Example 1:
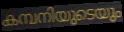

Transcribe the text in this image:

കമ്പനിയുടെയും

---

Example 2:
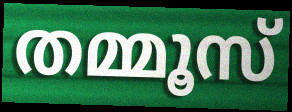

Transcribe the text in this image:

തമ്മൂസ്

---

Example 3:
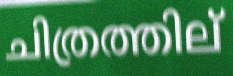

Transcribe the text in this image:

ചിത്രത്തില്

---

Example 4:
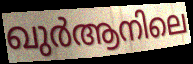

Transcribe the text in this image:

ഖുർആനിലെ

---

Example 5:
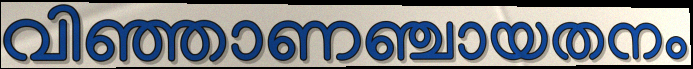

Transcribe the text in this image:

വിഞ്ഞാണഞ്ചായതനം